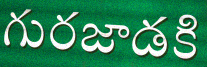
గురజాడకి